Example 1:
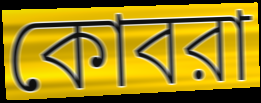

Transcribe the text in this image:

কোবরা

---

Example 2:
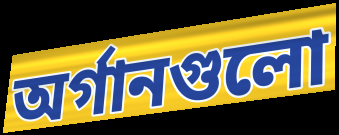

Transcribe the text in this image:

অর্গানগুলো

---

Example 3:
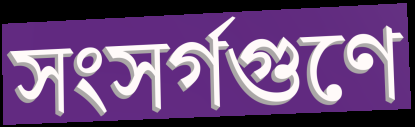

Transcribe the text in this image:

সংসর্গগুণে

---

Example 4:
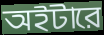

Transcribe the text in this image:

অইটারে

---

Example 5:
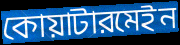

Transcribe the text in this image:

কোয়াটারমেইন